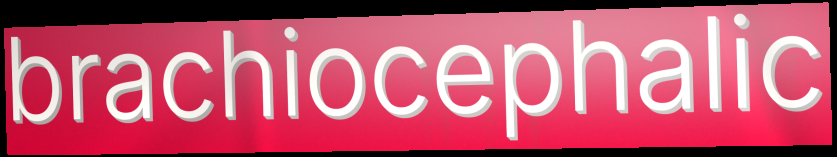
brachiocephalic